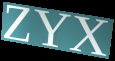
ZYX